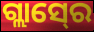
ଗ୍ଲାସ୍‍ରେ